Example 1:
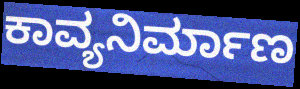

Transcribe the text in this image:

ಕಾವ್ಯನಿರ್ಮಾಣ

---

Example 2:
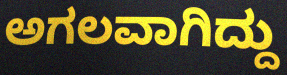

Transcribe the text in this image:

ಅಗಲವಾಗಿದ್ದು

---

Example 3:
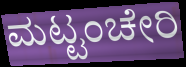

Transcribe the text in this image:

ಮಟ್ಟಂಚೇರಿ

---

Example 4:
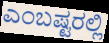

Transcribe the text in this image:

ಎಂಬಷ್ಟರಲ್ಲಿ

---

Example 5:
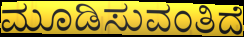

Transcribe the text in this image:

ಮೂಡಿಸುವಂತಿದೆ